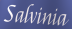
Salvinia